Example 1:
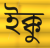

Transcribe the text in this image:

ইক্কু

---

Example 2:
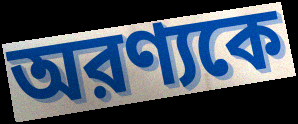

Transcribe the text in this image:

অরণ্যকে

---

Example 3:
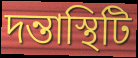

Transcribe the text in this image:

দন্তাস্থিটি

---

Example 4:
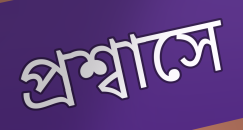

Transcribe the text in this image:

প্রশ্বাসে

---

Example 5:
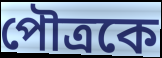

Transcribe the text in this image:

পৌত্রকে